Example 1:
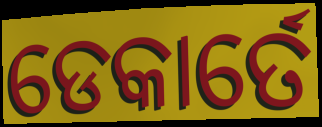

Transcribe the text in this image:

ଡେକାର୍ତେ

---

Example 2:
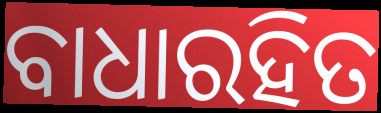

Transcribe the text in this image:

ବାଧାରହିତ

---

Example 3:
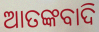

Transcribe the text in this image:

ଆତଙ୍କବାଦି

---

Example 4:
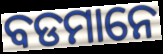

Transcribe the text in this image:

ବଡମାନେ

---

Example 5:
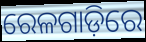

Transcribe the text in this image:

ରେଳଗାଡ଼ିରେ